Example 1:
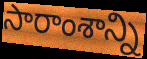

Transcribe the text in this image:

సారాంశాన్ని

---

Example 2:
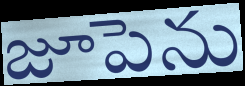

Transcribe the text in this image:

జూపెను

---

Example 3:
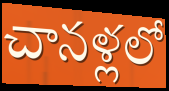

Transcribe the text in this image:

చానళ్లలో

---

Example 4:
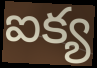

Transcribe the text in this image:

ఐక్య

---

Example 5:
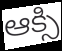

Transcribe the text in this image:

ఆక్సి